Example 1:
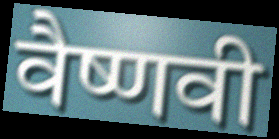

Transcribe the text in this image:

वैष्णवी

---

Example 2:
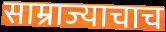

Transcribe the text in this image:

साम्राज्याचाच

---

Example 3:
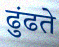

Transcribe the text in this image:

ढुंढते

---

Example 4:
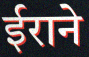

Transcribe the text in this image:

ईराने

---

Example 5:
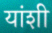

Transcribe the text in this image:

यांशी